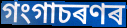
গংগাচৰণৰ